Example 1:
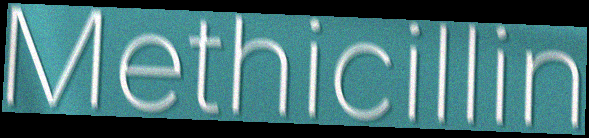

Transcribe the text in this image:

Methicillin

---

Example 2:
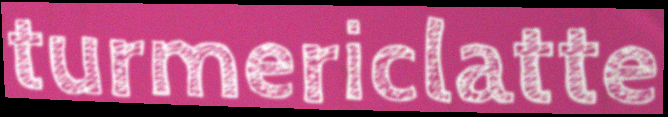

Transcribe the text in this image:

turmericlatte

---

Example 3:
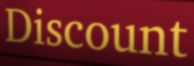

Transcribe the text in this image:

Discount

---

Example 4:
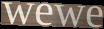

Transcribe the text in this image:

wewe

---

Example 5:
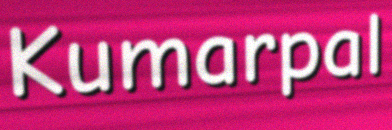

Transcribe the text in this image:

Kumarpal